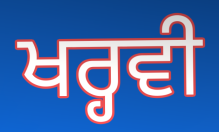
ਖਰ੍ਹਵੀ